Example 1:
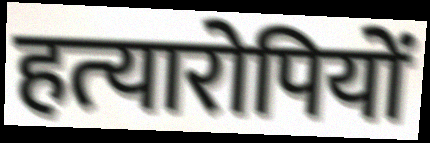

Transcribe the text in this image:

हत्‍यारोपियों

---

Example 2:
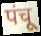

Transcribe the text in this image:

पंचू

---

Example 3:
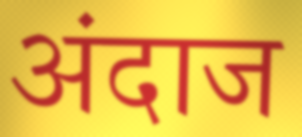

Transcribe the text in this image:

अंदाज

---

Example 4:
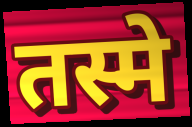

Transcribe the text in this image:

तस्मे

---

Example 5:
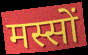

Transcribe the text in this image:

मस्सों